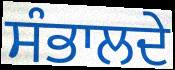
ਸੰਭਾਲਦੇ